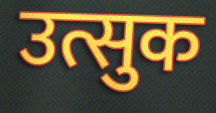
उत्सुक